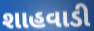
શાહવાડી